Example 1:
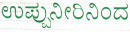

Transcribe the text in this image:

ಉಪ್ಪುನೀರಿನಿಂದ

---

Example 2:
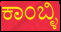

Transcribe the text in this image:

ಕಾಂಬ್ಳಿ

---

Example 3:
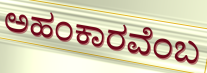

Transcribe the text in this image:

ಅಹಂಕಾರವೆಂಬ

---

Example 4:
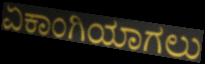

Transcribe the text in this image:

ಏಕಾಂಗಿಯಾಗಲು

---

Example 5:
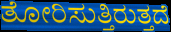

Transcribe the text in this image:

ತೋರಿಸುತ್ತಿರುತ್ತದೆ